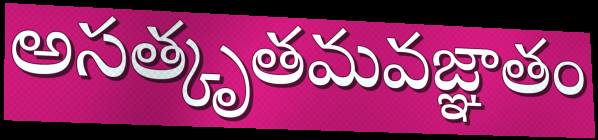
అసత్కృతమవజ్ఞాతం